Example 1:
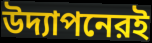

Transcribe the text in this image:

উদ্যাপনেরই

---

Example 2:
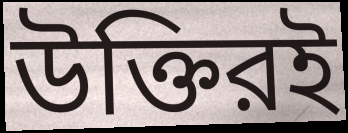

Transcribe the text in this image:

উক্তিরই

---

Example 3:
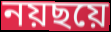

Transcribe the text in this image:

নয়ছয়ে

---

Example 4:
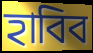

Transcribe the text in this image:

হাবিব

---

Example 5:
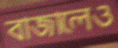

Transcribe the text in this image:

বাজালেও